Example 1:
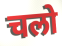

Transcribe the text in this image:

चलो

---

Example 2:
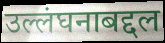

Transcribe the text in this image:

उल्लंघनाबद्दल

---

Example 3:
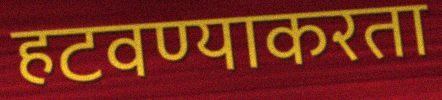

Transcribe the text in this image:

हटवण्याकरता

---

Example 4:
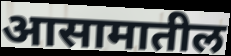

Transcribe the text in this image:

आसामातील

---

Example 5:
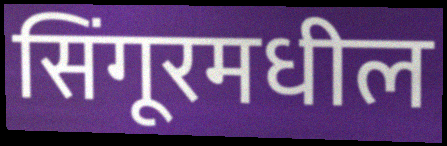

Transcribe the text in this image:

सिंगूरमधील